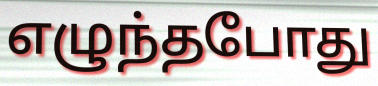
எழுந்தபோது